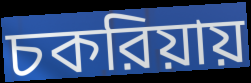
চকরিয়ায়